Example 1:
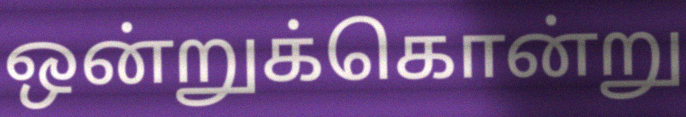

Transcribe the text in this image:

ஒன்றுக்கொன்று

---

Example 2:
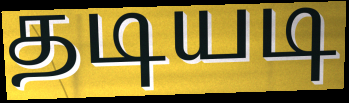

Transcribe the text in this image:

தடியடி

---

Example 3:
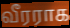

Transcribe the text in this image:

வீரராக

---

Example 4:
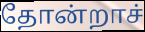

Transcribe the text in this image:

தோன்றாச்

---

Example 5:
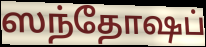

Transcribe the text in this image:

ஸந்தோஷப்